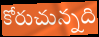
కోరుచున్నది